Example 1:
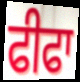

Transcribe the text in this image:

ਫੀਫਾ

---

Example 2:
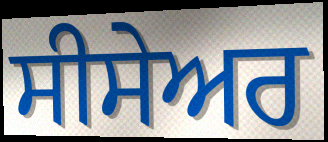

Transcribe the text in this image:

ਸੀਸੇਅਰ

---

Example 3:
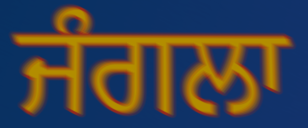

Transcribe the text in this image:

ਜੰਗਲਾ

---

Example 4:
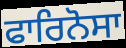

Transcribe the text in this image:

ਫਾਰਿਨੋਸਾ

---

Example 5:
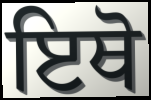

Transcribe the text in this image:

ਇਥੋ